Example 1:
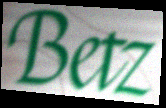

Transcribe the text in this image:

Betz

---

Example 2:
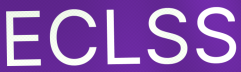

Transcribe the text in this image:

ECLSS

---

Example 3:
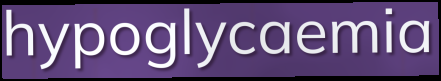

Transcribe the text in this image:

hypoglycaemia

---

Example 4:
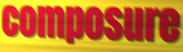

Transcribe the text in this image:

composure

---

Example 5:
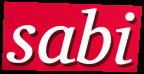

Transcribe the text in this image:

sabi